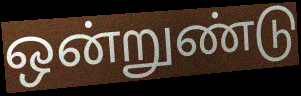
ஒன்றுண்டு